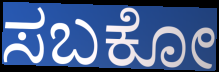
ಸಬಕೋ